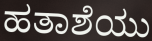
ಹತಾಶೆಯು